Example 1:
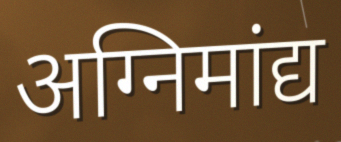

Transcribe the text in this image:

अग्निमांद्य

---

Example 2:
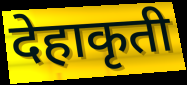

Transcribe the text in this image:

देहाकृती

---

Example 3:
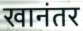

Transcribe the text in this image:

खानंतर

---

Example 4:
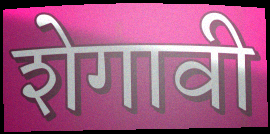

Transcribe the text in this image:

शेगावी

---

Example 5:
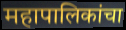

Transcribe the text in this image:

महापालिकांचा